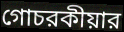
গোচরকীয়ার